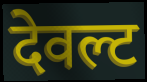
देवल्ट